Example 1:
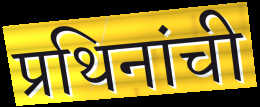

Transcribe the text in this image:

प्रथिनांची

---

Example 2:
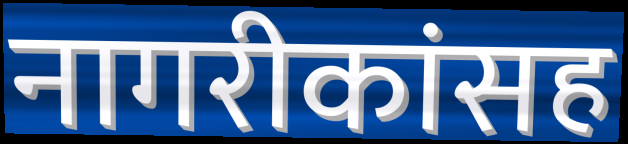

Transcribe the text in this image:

नागरीकांसह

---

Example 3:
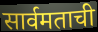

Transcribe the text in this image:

सार्वमताची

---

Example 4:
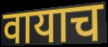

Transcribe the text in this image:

वायाच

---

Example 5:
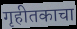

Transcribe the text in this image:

गृहीतकाचा